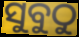
ସୁବୁଠୁ